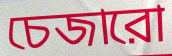
চেজারো